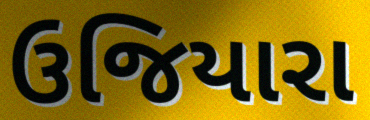
ઉજિયારા